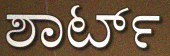
ಶಾರ್ಟ್